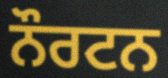
ਨੌਰਟਨ